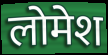
लोमेश